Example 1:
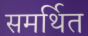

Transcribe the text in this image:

समर्थित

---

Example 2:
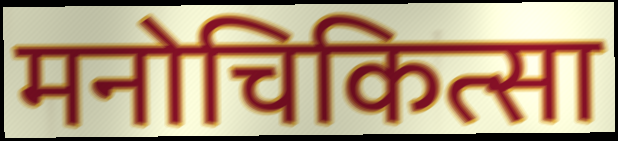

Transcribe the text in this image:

मनोचिकित्सा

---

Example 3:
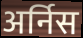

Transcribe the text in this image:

अर्निस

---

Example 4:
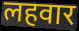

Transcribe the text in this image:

लहवार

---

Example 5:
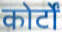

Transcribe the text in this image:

कोर्टों